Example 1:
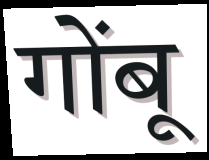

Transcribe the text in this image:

गोंबू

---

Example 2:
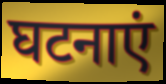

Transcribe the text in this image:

घटनाएं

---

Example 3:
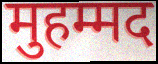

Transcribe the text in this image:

मुहम्मद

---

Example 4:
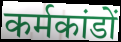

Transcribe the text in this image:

कर्मकांडों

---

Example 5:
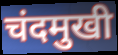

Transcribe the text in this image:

चंदमुखी